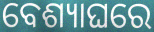
ବେଶ୍ୟାଘରେ